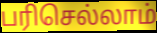
பரிசெல்லாம்